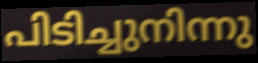
പിടിച്ചുനിന്നു